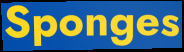
Sponges